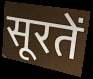
सूरतें